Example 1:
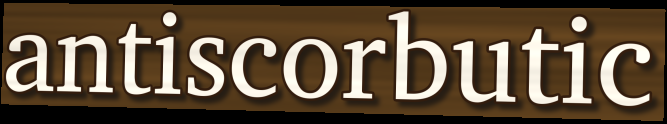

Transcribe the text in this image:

antiscorbutic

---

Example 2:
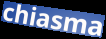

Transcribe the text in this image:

chiasma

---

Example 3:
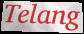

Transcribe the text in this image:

Telang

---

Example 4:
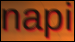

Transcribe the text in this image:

napi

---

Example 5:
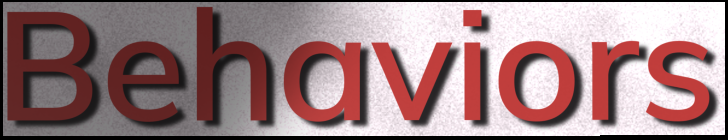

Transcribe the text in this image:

Behaviors